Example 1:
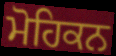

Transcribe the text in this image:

ਮੋਹਿਕਨ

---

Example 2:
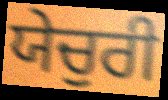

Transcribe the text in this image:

ਯੇਚੁਰੀ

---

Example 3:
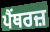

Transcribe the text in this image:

ਪੈਂਥਰਜ਼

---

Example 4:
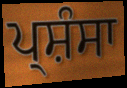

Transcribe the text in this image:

ਪ੍ਸ਼ੰਸਾ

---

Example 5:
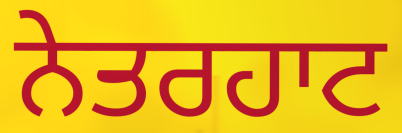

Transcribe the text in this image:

ਨੇਤਰਹਾਟ